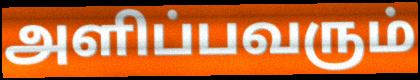
அளிப்பவரும்